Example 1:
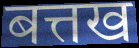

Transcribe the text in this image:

बत्तख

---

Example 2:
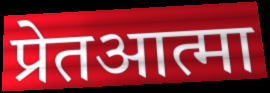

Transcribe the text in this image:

प्रेतआत्मा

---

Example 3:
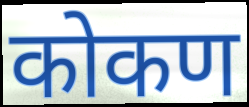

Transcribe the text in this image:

कोकण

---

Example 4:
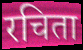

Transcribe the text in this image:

रचिता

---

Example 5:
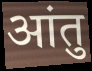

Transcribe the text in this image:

आंतु